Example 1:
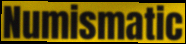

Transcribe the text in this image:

Numismatic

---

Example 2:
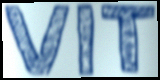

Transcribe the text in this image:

VIT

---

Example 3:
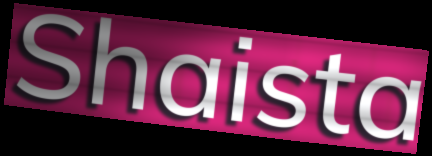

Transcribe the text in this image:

Shaista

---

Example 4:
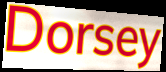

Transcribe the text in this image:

Dorsey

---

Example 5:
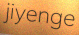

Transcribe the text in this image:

jiyenge